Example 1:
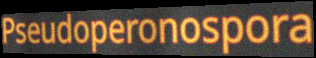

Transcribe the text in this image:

Pseudoperonospora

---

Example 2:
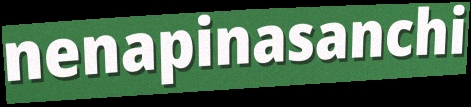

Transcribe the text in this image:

nenapinasanchi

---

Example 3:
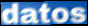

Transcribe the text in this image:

datos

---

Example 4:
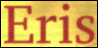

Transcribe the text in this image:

Eris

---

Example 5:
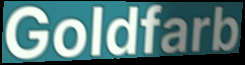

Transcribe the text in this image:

Goldfarb